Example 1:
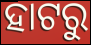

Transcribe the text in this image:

ହାଟରୁ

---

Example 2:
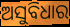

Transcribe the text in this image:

ଅସୁବିଧାର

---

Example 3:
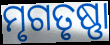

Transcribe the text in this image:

ମୃଗତୃଷ୍ଣା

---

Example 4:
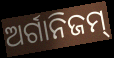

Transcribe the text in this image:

ଅର୍ଗାନିଜମ୍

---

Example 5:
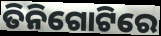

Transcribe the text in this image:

ତିନିଗୋଟିରେ